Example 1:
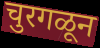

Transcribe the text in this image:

चुरगळून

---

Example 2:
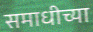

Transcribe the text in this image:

समाधीच्या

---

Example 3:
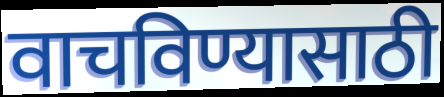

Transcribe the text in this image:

वाचविण्यासाठी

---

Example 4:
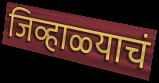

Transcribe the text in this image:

जिव्हाळ्याचं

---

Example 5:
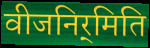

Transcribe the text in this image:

वीजनिर्मिति